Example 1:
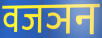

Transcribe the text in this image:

वजञन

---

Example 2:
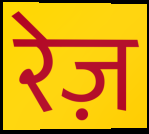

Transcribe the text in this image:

रेज़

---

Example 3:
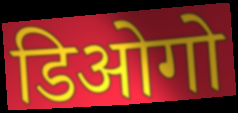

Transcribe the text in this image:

डिओगो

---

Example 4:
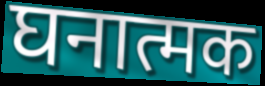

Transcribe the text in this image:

घनात्मक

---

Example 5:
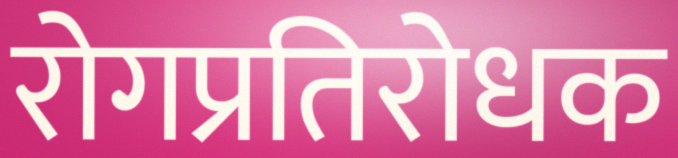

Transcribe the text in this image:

रोगप्रतिरोधक